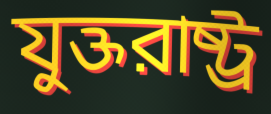
যুক্তরাষ্ট্র